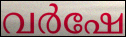
വർഷേ